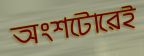
অংশটোৱেই